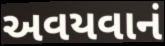
અવયવાનં